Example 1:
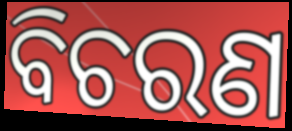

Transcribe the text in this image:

ବିଚରଣ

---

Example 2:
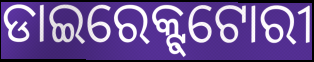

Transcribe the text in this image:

ଡାଇରେକ୍ଟ୍‌ଟୋରୀ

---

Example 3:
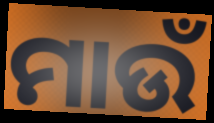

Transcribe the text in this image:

ମାଉଁ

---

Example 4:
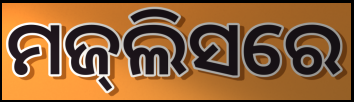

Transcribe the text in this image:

ମଜ୍‌ଲିସରେ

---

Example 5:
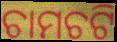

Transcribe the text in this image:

ଚାମଚଟି